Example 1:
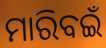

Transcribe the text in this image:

ମାରିବଇଁ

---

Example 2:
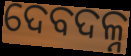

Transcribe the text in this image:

ଦେବଦଳ୍ନ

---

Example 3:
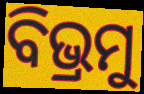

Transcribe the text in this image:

ବିଭ୍ରମୁ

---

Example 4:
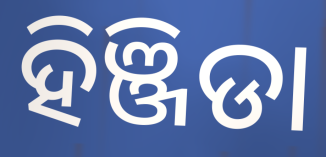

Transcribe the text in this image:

ହିଞ୍ଜିଡା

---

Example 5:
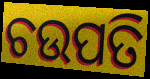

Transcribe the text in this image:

ଚଉପତି